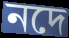
নদে